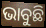
ଭାବୁଛି